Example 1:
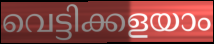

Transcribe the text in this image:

വെട്ടിക്കളയാം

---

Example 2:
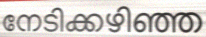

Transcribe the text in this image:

നേടിക്കഴിഞ്ഞ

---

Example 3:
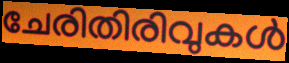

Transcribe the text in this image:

ചേരിതിരിവുകൾ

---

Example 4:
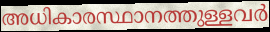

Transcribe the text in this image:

അധികാരസ്ഥാനത്തുള്ളവർ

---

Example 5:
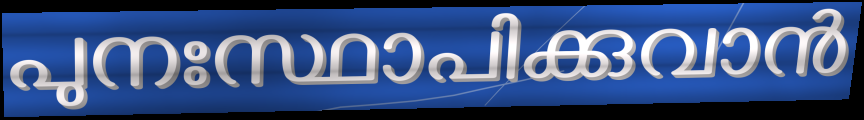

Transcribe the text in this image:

പുനഃസ്ഥാപിക്കുവാൻ